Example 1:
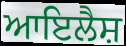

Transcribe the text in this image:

ਆਇਲੈਸ਼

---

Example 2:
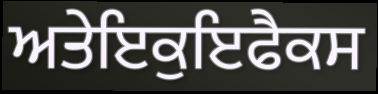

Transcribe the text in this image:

ਅਤੇਇਕੁਇਫੈਕਸ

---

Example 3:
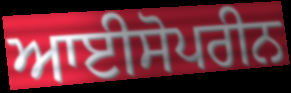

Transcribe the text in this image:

ਆਈਸੋਪਰੀਨ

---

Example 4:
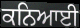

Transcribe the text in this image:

ਕਨਿਆਈ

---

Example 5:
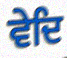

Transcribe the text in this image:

ਵੇਦਿ